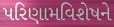
પરિણામવિશેષને